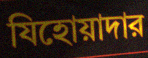
যিহোয়াদার